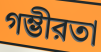
গম্ভীরতা